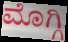
ಮೊಗ್ಗಿ